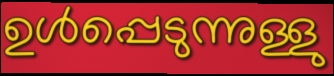
ഉൾപ്പെടുന്നുള്ളു